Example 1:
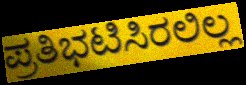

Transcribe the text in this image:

ಪ್ರತಿಭಟಿಸಿರಲಿಲ್ಲ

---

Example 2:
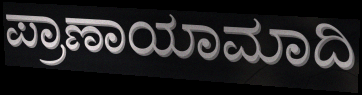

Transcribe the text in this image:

ಪ್ರಾಣಾಯಾಮಾದಿ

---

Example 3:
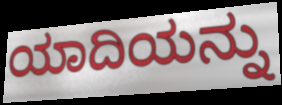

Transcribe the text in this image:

ಯಾದಿಯನ್ನು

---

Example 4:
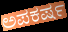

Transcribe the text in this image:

ಅಪಕರ್ಷ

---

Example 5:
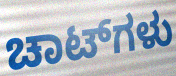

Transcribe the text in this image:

ಚಾಟ್‌ಗಳು